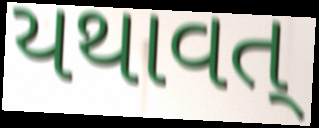
યથાવત્